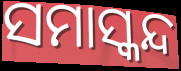
ସମାସ୍କନ୍ଦ